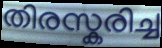
തിരസ്കരിച്ച